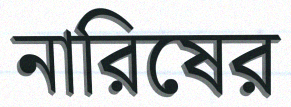
নারিষের